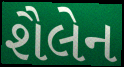
શૈલેન